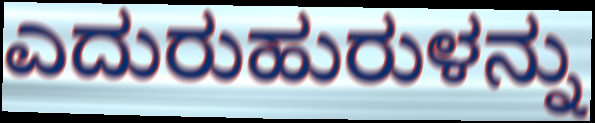
ಎದುರುಹುರುಳನ್ನು